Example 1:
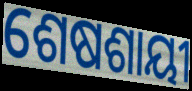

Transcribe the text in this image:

ଶେଷଶାୟୀ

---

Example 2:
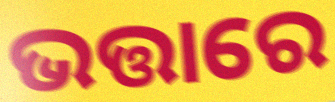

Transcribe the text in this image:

ଭତ୍ତାରେ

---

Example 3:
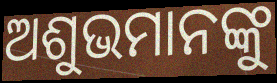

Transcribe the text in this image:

ଅଶୁଭମାନଙ୍କୁ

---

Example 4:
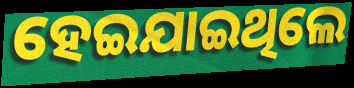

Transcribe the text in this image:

ହେଇଯାଇଥିଲେ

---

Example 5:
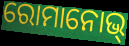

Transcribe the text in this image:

ରୋମାନୋଭ୍